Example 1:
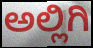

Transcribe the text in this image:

ಅಲ್ಲಿಗಿ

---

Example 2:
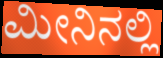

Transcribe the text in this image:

ಮೀನಿನಲ್ಲಿ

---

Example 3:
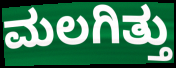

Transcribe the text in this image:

ಮಲಗಿತ್ತು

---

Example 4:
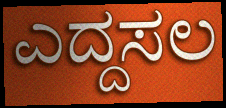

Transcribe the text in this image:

ಎದ್ದಸಲ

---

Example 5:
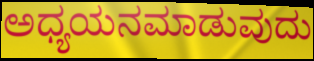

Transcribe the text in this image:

ಅಧ್ಯಯನಮಾಡುವುದು